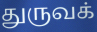
துருவக்